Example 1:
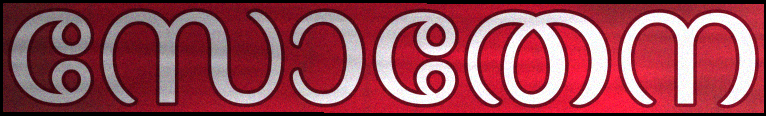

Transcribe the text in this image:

സോതേന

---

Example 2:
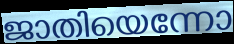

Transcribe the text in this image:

ജാതിയെന്നോ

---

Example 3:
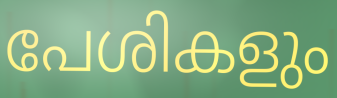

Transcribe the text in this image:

പേശികളും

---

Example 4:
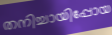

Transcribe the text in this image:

തനിച്ചായിപ്പോയ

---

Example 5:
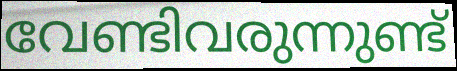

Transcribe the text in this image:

വേണ്ടിവരുന്നുണ്ട്